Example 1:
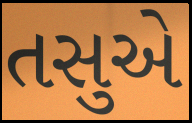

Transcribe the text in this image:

તસુએ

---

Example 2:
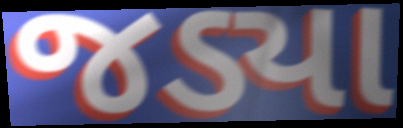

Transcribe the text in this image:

જડ્યા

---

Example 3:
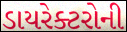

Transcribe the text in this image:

ડાયરેક્ટરોની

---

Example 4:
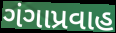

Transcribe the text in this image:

ગંગાપ્રવાહ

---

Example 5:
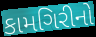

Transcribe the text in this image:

કામગિરીનો